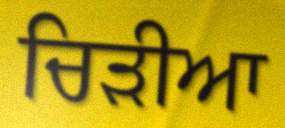
ਚਿੜੀਆ